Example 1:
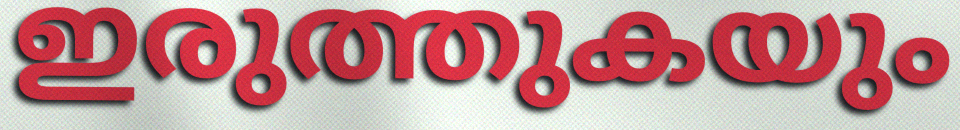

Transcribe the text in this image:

ഇരുത്തുകയും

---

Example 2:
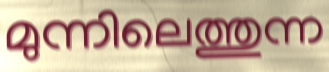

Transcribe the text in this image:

മുന്നിലെത്തുന്ന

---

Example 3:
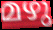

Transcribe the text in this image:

മഴു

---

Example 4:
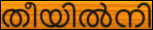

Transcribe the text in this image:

തീയിൽനി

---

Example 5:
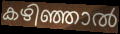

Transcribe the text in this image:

കഴിഞ്ഞാൽ